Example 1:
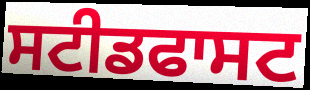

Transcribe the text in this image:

ਸਟੀਡਫਾਸਟ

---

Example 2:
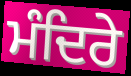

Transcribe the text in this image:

ਮੰਦਿਰੇ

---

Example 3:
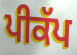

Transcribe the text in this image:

ਪੀਕੱਪ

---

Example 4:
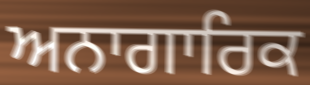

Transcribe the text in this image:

ਅਨਾਗਾਰਿਕ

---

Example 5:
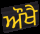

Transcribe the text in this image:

ਔਖੈ